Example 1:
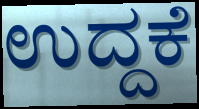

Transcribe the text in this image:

ಉದ್ದಕೆ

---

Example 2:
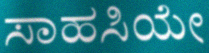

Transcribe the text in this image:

ಸಾಹಸಿಯೇ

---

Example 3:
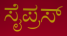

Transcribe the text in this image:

ಸೈಪ್ರಸ್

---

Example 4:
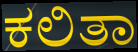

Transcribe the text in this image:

ಕಲಿತಾ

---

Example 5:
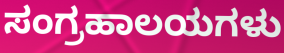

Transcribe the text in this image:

ಸಂಗ್ರಹಾಲಯಗಳು